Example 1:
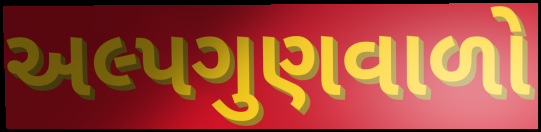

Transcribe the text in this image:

અલ્પગુણવાળો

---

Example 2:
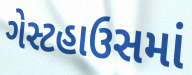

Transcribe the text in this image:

ગેસ્ટહાઉસમાં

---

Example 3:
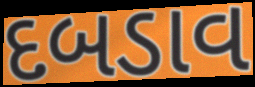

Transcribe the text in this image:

દબડાવ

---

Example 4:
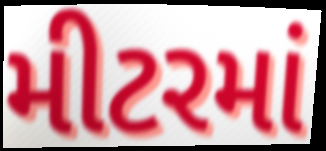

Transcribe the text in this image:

મીટરમાં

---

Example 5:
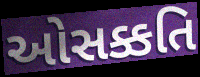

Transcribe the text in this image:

ઓસક્કતિ